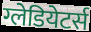
ग्लेडियेटर्स